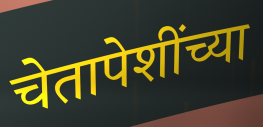
चेतापेशींच्या